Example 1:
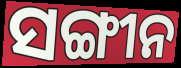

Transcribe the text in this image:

ସଙ୍ଗୀନ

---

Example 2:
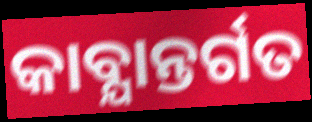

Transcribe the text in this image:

କାବ୍ଯାନ୍ତର୍ଗତ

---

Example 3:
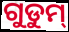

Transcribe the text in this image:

ଗୁଡୁମ୍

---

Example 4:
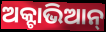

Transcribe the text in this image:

ଅକ୍ଟାଭିଆନ୍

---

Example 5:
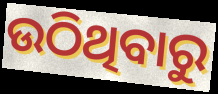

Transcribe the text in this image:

ଉଠିଥିବାରୁ